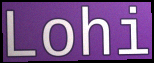
Lohi